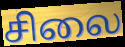
சிலை